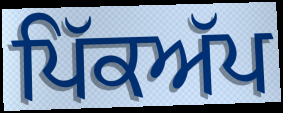
ਪਿੱਕਅੱਪ